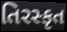
તિરસ્કૃત